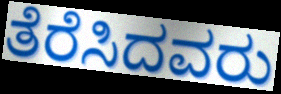
ತೆರೆಸಿದವರು